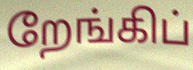
றேங்கிப்